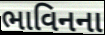
ભાવિનના